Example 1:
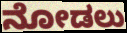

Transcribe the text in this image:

ನೋಡಲು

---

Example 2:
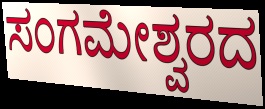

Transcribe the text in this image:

ಸಂಗಮೇಶ್ವರದ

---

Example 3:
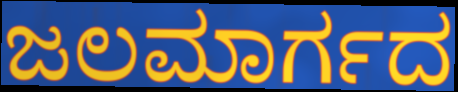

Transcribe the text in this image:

ಜಲಮಾರ್ಗದ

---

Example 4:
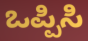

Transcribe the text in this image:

ಒಪ್ಪಿಸಿ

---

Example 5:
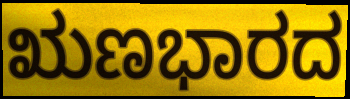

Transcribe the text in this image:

ಋಣಭಾರದ